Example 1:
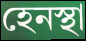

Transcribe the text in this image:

হেনস্থা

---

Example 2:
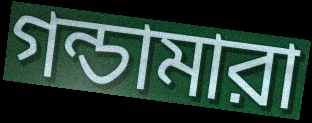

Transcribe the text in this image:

গন্ডামারা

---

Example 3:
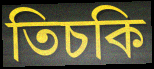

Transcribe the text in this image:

তিচকি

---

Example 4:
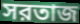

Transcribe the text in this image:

সরতাজ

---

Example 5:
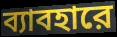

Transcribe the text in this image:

ব্যাবহারে